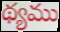
థ్యము